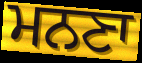
ਮਨਣਾ